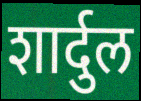
शार्दुल